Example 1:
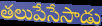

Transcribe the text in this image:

తలుపేసేసాడు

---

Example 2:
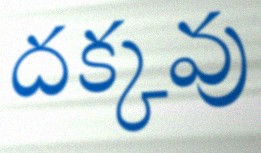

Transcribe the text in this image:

దక్కవు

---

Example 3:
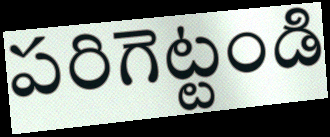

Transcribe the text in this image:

పరిగెట్టండి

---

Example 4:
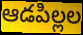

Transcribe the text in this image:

ఆడపిల్లల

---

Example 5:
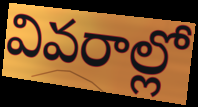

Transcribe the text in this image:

వివరాల్లో